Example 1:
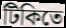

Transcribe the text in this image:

টিকিতে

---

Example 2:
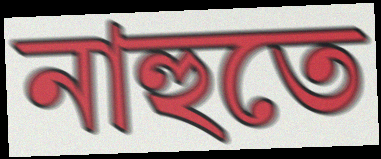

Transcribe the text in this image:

নাহুতে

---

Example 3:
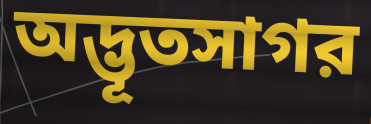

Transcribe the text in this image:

অদ্ভূতসাগর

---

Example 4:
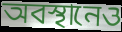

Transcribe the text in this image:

অবস্থানেও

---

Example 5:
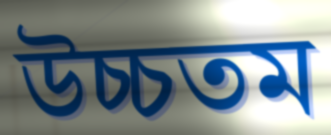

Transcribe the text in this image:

উচ্চতম